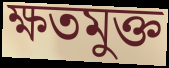
ক্ষতমুক্ত